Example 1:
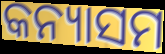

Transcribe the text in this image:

କନ୍ୟାସମ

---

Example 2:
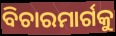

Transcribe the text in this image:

ବିଚାରମାର୍ଗକୁ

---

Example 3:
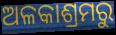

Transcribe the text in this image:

ଅଳକାଶ୍ରମରୁ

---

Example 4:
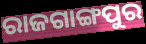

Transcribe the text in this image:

ରାଜଗାଙ୍ଗପୁର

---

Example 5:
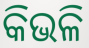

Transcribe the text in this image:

କିଭଳି